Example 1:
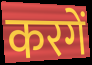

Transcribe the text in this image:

करगें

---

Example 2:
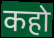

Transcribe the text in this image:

कहो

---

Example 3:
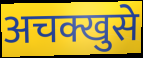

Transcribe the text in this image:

अचक्खुसे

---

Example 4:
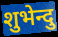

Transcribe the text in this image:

शुभेन्दु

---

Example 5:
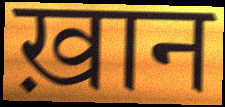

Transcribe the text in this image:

ख़ान